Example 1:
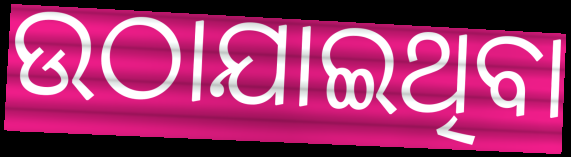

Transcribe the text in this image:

ଉଠାଯାଇଥିବା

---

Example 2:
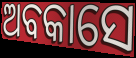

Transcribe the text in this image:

ଅବକାସେ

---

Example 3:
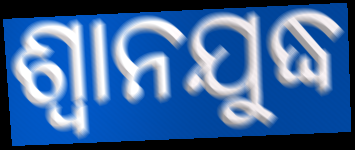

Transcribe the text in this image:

ଶ୍ଵାନଯୁଦ୍ଧ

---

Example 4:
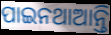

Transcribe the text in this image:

ପାଇନଥାଆନ୍ତି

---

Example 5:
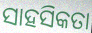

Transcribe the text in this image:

ସାହସିକତା